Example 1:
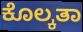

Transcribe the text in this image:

ಕೊಲ್ಕತಾ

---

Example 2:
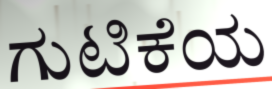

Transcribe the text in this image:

ಗುಟಿಕೆಯ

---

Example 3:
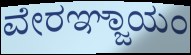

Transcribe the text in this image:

ವೇರಞ್ಜಾಯಂ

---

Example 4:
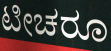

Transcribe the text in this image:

ಟೀಚರೂ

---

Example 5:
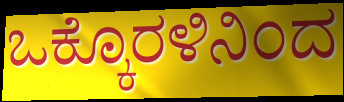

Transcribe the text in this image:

ಒಕ್ಕೊರಳಿನಿಂದ